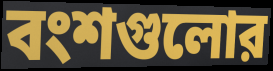
বংশগুলোর